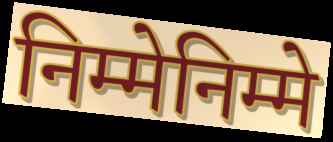
निम्मेनिम्मे